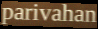
parivahan